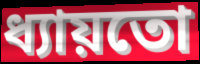
ধ্যায়তো